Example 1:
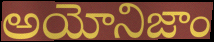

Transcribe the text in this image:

అయోనిజాం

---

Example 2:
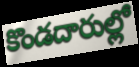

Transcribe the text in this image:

కొండదారుల్లో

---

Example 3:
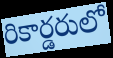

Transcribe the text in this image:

రికార్డరులో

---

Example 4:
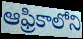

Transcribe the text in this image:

ఆఫ్రికాలోని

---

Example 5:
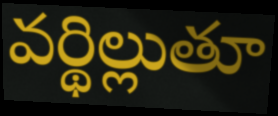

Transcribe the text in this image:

వర్థిల్లుతూ